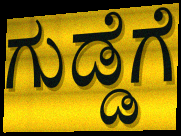
ಗುಡ್ಡೆಗೆ